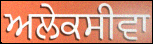
ਅਲੇਕਸੀਵਾ